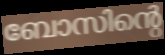
ബോസിന്റെ